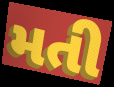
મતી